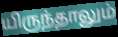
யிருந்தாலும்